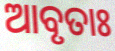
ଆବୃତାଃ